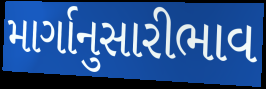
માર્ગાનુસારીભાવ